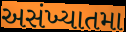
અસંખ્યાતમા